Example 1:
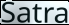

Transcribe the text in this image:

Satra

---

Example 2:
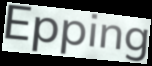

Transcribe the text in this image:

Epping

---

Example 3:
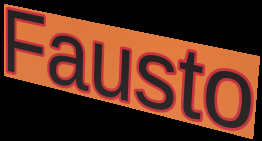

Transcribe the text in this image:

Fausto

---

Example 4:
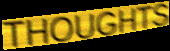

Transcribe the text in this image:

THOUGHTS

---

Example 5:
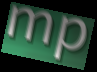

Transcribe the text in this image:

mp